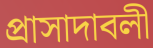
প্রাসাদাবলী